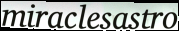
miraclesastro